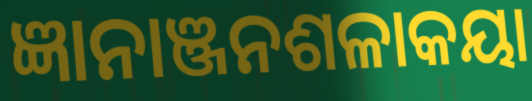
ଜ୍ଞାନାଞ୍ଜନଶଳାକୟା